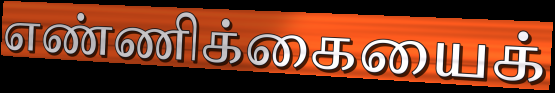
எண்ணிக்கையைக்